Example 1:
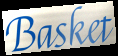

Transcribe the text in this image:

Basket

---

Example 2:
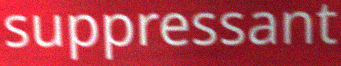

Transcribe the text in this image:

suppressant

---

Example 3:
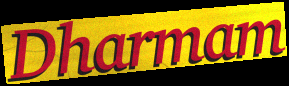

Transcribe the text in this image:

Dharmam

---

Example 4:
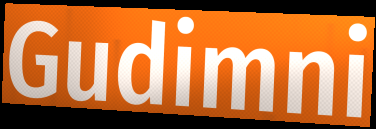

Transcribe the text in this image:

Gudimni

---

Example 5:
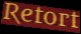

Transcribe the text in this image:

Retort